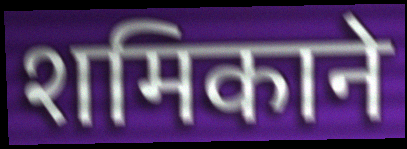
शमिकाने